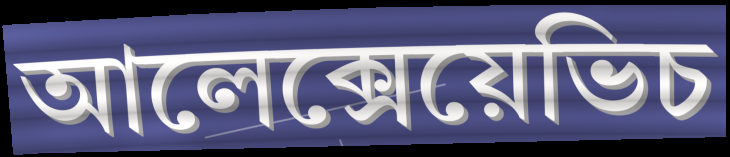
আলেক্সেয়েভিচ